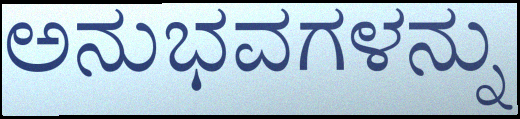
ಅನುಭವಗಳನ್ನು